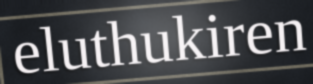
eluthukiren